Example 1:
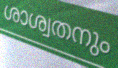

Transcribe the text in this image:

ശാശ്വതനും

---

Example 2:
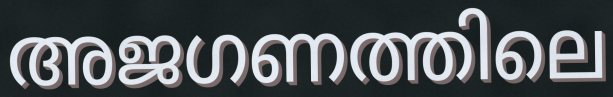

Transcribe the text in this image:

അജഗണത്തിലെ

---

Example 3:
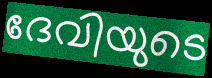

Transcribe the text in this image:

ദേവിയുടെ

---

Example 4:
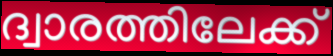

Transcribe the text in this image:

ദ്വാരത്തിലേക്ക്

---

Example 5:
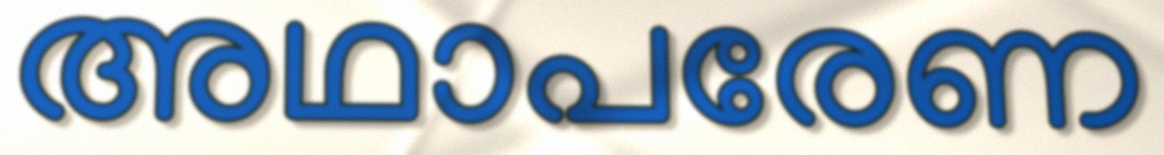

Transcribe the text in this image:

അഥാപരേണ